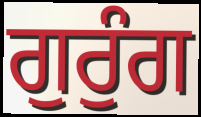
ਗੁਰੁੰਗ